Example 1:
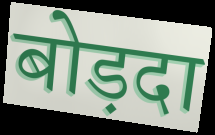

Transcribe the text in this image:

बोड़दा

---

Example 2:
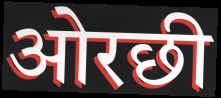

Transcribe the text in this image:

ओरछी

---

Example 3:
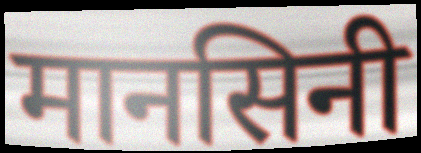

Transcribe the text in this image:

मानसिनी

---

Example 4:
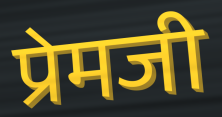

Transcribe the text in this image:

प्रेमजी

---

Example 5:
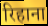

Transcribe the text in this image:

रिहाना